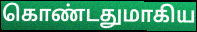
கொண்டதுமாகிய